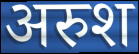
अरुश